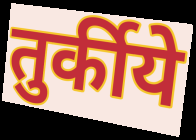
तुर्कीये